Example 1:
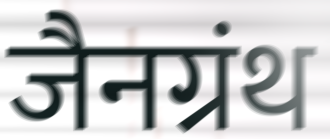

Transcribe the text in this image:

जैनग्रंथ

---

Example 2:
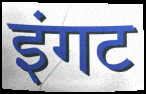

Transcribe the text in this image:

इंगट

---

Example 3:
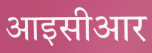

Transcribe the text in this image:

आइसीआर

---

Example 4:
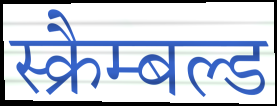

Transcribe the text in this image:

स्क्रैम्बल्ड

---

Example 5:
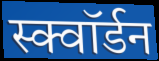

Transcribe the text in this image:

स्क्वॉर्डन